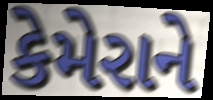
કેમેરાને